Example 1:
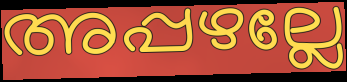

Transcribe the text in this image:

അപ്പഴല്ലേ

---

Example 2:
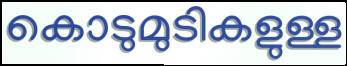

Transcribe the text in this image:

കൊടുമുടികളുള്ള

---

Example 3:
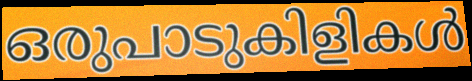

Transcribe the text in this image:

ഒരുപാടുകിളികൾ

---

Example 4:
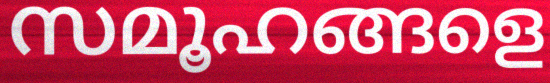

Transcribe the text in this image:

സമൂഹങ്ങളെ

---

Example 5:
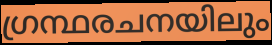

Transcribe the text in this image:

ഗ്രന്ഥരചനയിലും